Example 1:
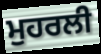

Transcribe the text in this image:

ਮੁਹਰਲੀ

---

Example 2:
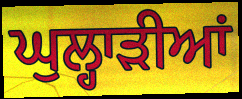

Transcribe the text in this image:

ਘੁਲ੍ਹਾੜੀਆਂ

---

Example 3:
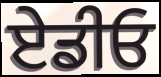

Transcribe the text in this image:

ਏਡੀਓ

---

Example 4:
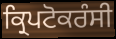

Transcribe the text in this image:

ਕ੍ਰਿਪਟੋਕਰੰਸੀ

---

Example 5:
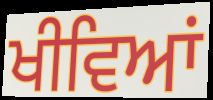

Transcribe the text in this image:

ਖੀਵਿਆਂ